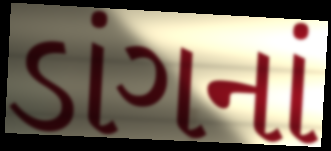
ડાંગનાં